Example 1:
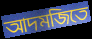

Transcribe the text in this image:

আদমজিতে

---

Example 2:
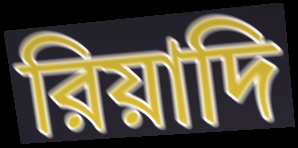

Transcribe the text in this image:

রিয়াদি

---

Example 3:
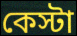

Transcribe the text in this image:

কেস্টা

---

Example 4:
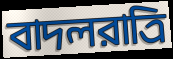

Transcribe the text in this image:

বাদলরাত্রি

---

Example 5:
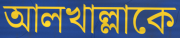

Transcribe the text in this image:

আলখাল্লাকে